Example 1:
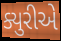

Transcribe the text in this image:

ક્યુરીએ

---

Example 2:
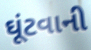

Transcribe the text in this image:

ઘૂંટવાની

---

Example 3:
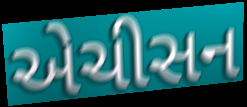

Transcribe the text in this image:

એચીસન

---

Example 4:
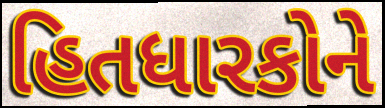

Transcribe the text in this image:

હિતધારકોને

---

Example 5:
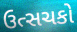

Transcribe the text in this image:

ઉત્સચકો